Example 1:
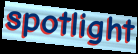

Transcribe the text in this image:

spotlight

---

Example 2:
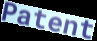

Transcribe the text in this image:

Patent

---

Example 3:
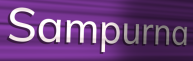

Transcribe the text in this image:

Sampurna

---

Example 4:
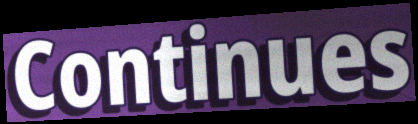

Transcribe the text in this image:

Continues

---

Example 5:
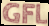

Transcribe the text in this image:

GFL